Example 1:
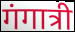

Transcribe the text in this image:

गंगात्री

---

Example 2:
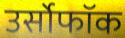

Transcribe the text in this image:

उर्सोफॉक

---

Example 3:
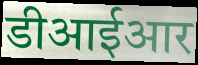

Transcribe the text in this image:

डीआईआर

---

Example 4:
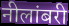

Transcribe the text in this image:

नीलांबरी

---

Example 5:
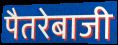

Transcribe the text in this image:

पैतरेबाजी